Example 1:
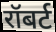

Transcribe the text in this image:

रॉबर्ट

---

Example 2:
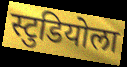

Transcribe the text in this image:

स्टुडियोला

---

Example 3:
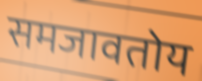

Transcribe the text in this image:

समजावतोय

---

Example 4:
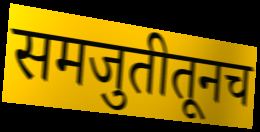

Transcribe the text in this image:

समजुतीतूनच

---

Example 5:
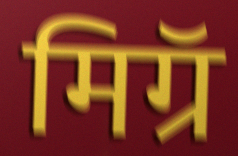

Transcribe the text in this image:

मिग्रॅ